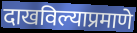
दाखविल्याप्रमाणे